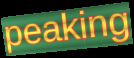
peaking